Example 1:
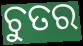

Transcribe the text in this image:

ଚୁତର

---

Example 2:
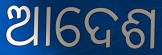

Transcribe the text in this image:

ଆଦେଶ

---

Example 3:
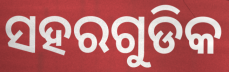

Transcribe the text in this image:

ସହରଗୁଡିକ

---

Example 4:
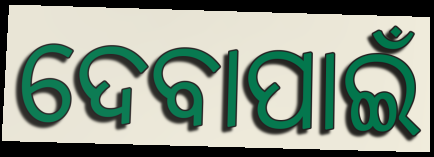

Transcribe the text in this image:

ଦେବାପାଇଁ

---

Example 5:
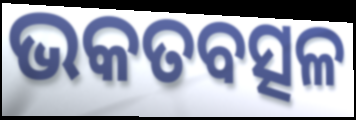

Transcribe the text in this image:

ଭକତବତ୍ସଳ